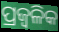
ପ୍ରଜ୍ଵଳିକ